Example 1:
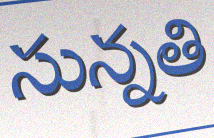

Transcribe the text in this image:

సున్నతి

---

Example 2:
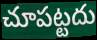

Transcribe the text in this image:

చూపట్టదు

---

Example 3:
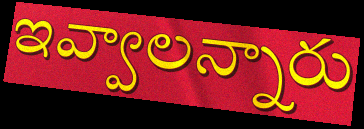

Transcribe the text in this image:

ఇవ్వాలన్నారు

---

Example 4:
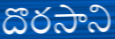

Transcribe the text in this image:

దొరసాని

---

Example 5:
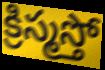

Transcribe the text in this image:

క్రిస్మస్తో